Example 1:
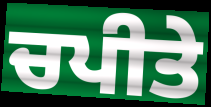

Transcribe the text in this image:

ਚਪੀਤੇ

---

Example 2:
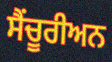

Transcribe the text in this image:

ਸੈਂਚੂਰੀਅਨ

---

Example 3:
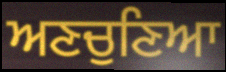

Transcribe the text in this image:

ਅਣਚੁਣਿਆ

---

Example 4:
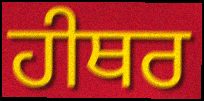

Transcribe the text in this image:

ਹੀਥਰ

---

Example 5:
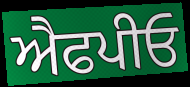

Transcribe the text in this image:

ਐਫਪੀਓ